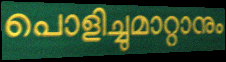
പൊളിച്ചുമാറ്റാനും